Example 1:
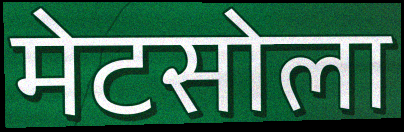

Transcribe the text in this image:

मेटसोला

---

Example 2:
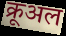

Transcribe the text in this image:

क्रूअल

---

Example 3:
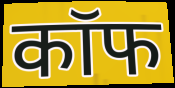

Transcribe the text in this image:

कॉफ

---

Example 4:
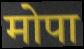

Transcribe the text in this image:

मोपा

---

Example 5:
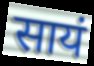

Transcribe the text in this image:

सायं